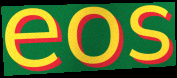
eos